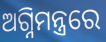
ଅଗ୍ନିମନ୍ତ୍ରରେ